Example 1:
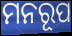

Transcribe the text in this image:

ମନରୂପ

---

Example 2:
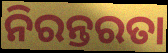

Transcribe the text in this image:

ନିରନ୍ତରତା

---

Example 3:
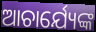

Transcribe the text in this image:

ଆଚାର୍ଯ୍ୟେଙ୍କ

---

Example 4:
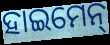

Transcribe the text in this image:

ହାଇମେନ୍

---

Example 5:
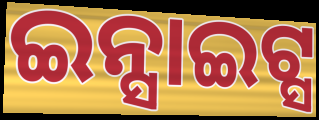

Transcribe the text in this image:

ଇନ୍ସାଇଟ୍ସ